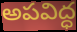
అపవిద్ధ